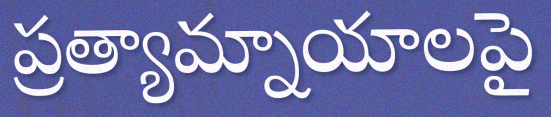
ప్రత్యామ్నాయాలపై